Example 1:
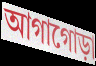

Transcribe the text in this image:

আগাগোড়া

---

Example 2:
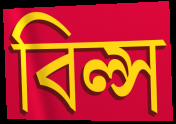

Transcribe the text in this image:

বিল্স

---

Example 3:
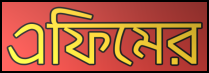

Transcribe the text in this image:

এফিমের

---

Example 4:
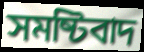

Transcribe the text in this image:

সমষ্টিবাদ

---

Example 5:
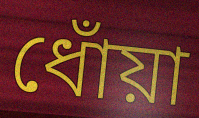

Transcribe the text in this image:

ধোঁয়া